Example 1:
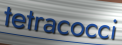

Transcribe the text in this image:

tetracocci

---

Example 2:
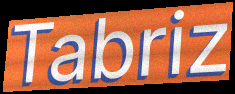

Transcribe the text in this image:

Tabriz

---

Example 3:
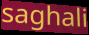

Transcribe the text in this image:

saghali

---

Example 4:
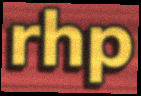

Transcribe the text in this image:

rhp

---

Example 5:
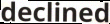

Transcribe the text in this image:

declined